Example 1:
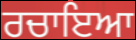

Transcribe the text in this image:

ਰਚਾਇਆ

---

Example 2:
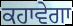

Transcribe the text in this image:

ਕਹਾਵੇਗਾ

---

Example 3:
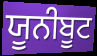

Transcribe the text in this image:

ਯੂਨੀਬੂਟ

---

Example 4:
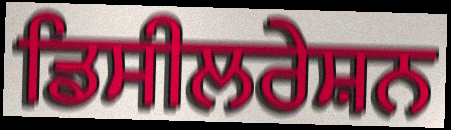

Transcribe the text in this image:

ਡਿਸੀਲਰੇਸ਼ਨ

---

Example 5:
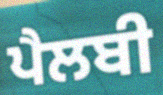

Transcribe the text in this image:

ਪੈਲਬੀ